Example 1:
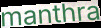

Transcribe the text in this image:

manthra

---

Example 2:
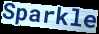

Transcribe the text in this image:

Sparkle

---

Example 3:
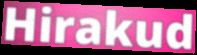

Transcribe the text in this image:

Hirakud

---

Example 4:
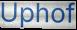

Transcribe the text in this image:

Uphof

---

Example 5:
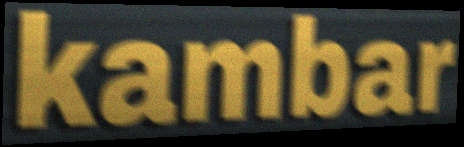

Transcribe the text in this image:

kambar